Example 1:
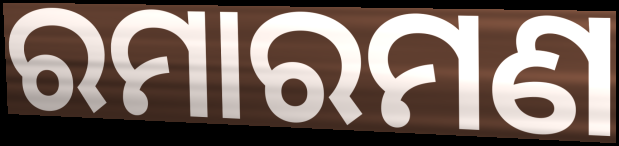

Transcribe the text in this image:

ରମାରମଣ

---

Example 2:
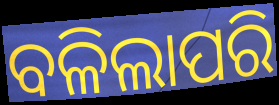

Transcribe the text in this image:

ବଳିଲାପରି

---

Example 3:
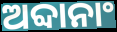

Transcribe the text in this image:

ଅବ୍ଦାନାଂ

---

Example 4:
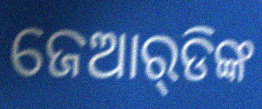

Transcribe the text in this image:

ଜେଆର୍‌ଡିଙ୍କ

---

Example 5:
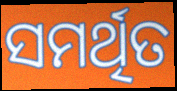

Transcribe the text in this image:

ସମର୍ଥିତ